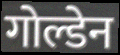
गोल्डेन